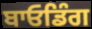
ਬਾਓਡਿੰਗ